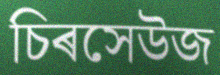
চিৰসেউজ